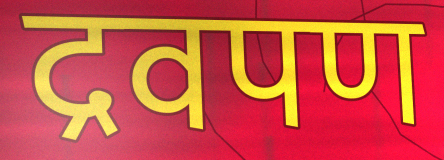
द्रवपण